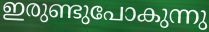
ഇരുണ്ടുപോകുന്നു